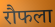
रौफला